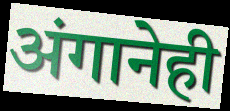
अंगानेही